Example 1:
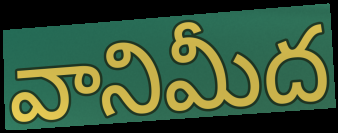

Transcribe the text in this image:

వానిమీద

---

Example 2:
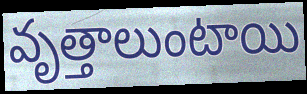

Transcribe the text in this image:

వృత్తాలుంటాయి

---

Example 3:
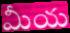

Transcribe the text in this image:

మీయ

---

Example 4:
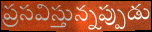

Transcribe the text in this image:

ప్రసవిస్తున్నప్పుడు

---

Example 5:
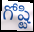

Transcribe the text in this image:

గోష్టి